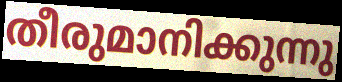
തീരുമാനിക്കുന്നു